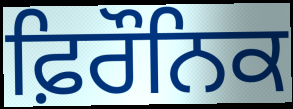
ਫ਼ਿਰੌਨਿਕ